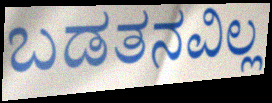
ಬಡತನವಿಲ್ಲ